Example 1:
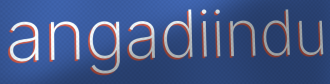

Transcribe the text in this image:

angadiindu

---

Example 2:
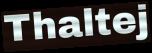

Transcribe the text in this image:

Thaltej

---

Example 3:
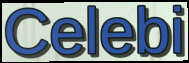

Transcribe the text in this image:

Celebi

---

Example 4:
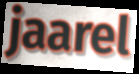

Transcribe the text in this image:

jaarel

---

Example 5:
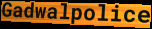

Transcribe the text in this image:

Gadwalpolice